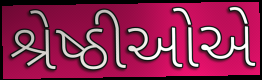
શ્રેષ્ઠીઓએ